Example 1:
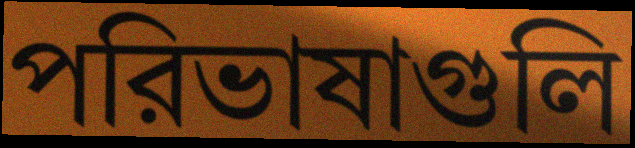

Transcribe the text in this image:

পরিভাষাগুলি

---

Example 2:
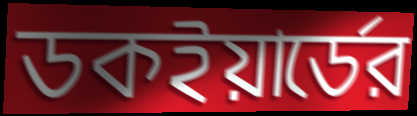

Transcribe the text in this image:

ডকইয়ার্ডের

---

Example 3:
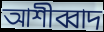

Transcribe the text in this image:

আশীব্বাদ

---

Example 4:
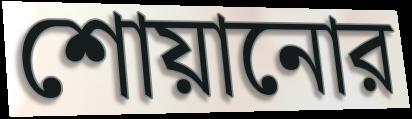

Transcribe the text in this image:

শোয়ানোর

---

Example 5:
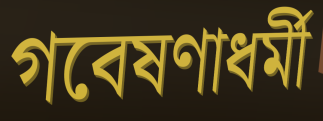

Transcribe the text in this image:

গবেষণাধর্মী